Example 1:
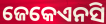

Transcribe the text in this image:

ଜେକେଏନସି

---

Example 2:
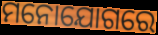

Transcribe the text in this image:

ମନୋଯୋଗରେ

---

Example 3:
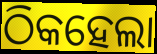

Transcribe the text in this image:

ଠିକହେଲା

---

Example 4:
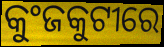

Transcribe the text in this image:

କୁଂଜକୁଟୀରେ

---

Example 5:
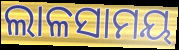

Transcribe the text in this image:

ଲାଳସାମୟ